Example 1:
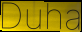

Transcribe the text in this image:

Duha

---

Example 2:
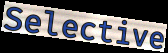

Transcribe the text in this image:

Selective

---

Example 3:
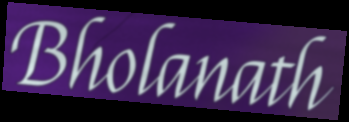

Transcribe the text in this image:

Bholanath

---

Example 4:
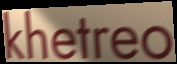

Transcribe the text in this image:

khetreo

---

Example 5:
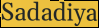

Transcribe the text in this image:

Sadadiya